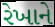
રેખાને